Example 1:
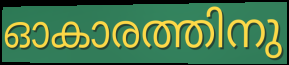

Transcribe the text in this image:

ഓകാരത്തിനു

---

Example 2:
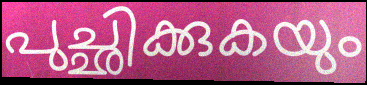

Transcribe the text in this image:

പുച്ഛിക്കുകയും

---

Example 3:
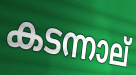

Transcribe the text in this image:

കടന്നാല്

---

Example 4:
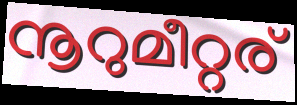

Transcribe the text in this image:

നൂറുമീറ്റര്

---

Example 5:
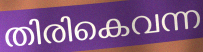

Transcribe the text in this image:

തിരികെവന്ന